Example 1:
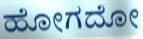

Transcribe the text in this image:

ಹೋಗದೋ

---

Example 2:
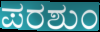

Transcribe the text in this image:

ಪರಶುಂ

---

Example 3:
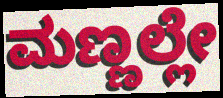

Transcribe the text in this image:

ಮಣ್ಣಲ್ಲೇ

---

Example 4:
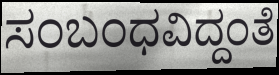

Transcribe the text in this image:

ಸಂಬಂಧವಿದ್ದಂತೆ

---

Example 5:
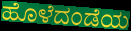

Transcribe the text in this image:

ಹೊಳೆದಂಡೆಯ